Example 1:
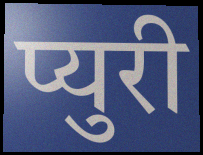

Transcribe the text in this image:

प्युरी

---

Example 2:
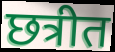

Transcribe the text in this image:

छत्रीत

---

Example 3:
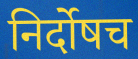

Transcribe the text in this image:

निर्दोषच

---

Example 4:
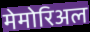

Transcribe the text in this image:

मेमोरिअल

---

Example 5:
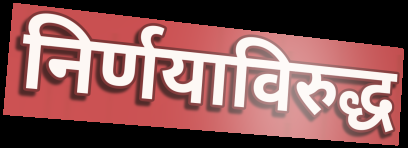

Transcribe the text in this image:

निर्णयाविरुद्ध